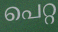
പെറ്റ